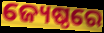
ଜ୍ୟେଷ୍ଠରେ